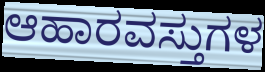
ಆಹಾರವಸ್ತುಗಳ